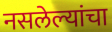
नसलेल्यांचा